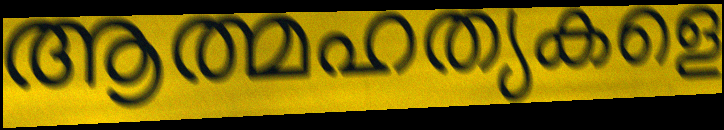
ആത്മഹത്യകളെ